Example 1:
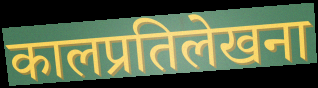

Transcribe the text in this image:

कालप्रतिलेखना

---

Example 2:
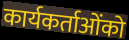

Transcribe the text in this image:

कार्यकर्ताओंको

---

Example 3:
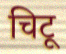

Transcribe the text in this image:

चिटू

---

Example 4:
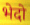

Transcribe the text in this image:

भेदो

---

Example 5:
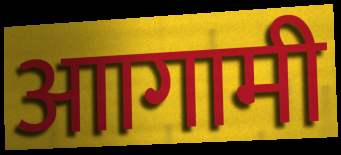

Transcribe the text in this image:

आागामी